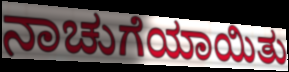
ನಾಚುಗೆಯಾಯಿತು